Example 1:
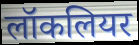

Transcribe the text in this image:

लॉकलियर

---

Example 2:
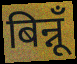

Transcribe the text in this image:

बिन्नूँ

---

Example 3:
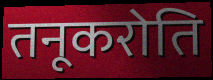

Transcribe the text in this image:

तनूकरोति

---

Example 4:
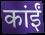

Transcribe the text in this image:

कांईं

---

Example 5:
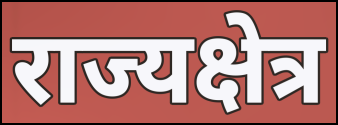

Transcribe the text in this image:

राज्यक्षेत्र